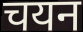
चयन